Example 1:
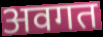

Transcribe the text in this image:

अवगत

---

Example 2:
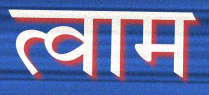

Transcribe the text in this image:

त्वाम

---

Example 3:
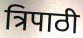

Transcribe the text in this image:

त्रिपाठी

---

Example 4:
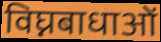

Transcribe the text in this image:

विघ्नबाधाओं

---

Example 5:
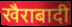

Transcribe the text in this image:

खैराबादी